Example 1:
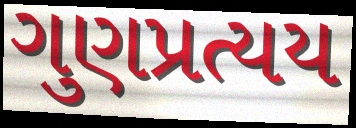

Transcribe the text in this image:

ગુણપ્રત્યય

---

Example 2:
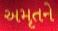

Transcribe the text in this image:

અમૃતને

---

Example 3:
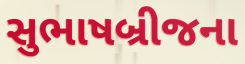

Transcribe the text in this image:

સુભાષબ્રીજના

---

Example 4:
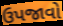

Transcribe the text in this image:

ઉપજાવો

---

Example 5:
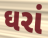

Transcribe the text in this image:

ઘરાં